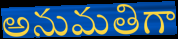
అనుమతిగా